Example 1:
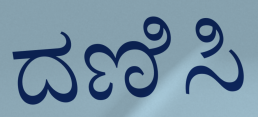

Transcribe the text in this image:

ದಣಿಸಿ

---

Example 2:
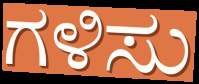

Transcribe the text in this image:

ಗಳಿಸು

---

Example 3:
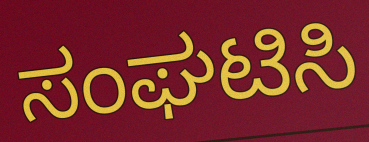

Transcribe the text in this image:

ಸಂಘಟಿಸಿ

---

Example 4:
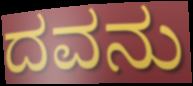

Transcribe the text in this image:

ದವನು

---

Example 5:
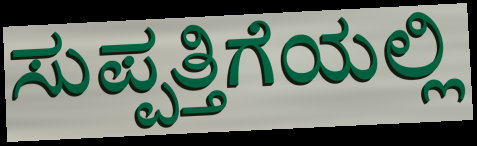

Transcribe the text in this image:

ಸುಪ್ಪತ್ತಿಗೆಯಲ್ಲಿ